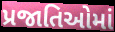
પ્રજાતિઓમાં